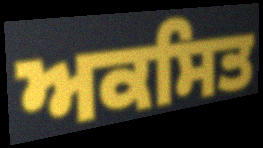
ਅਕਸਿਤ